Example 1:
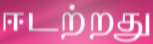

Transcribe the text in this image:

ஈடற்றது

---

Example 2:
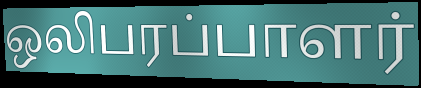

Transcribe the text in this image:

ஒலிபரப்பாளர்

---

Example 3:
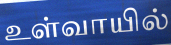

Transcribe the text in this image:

உள்வாயில்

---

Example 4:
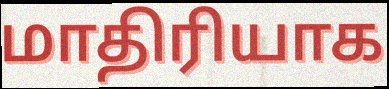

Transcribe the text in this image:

மாதிரியாக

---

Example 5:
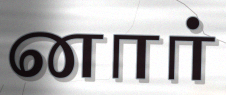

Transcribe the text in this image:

னார்